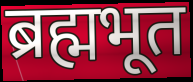
ब्रह्मभूत